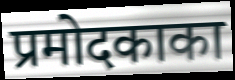
प्रमोदकाका